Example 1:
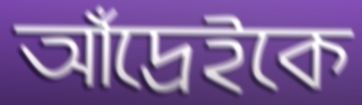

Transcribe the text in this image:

আঁদ্রেইকে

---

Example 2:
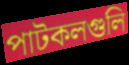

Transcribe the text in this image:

পাটকলগুলি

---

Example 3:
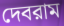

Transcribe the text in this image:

দেবরাম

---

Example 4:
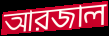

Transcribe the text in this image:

আরজাল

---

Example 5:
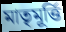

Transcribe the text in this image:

মাতৃমূর্ত্তি